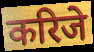
करिजे